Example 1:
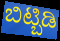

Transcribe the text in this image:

ಬಿಟ್ಬಿಡಿ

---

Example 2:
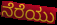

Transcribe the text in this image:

ನೆರೆಯು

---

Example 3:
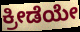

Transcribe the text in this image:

ಕ್ರೀಡೆಯೇ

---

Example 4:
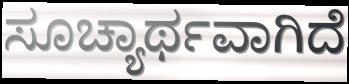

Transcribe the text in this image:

ಸೂಚ್ಯಾರ್ಥವಾಗಿದೆ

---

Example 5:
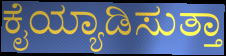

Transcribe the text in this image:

ಕೈಯ್ಯಾಡಿಸುತ್ತಾ